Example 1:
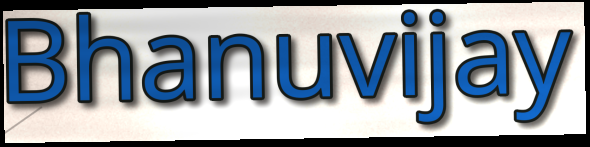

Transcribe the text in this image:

Bhanuvijay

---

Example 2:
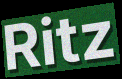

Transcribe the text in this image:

Ritz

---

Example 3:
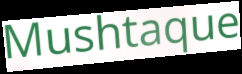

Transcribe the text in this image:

Mushtaque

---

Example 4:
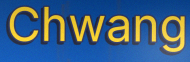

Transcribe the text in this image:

Chwang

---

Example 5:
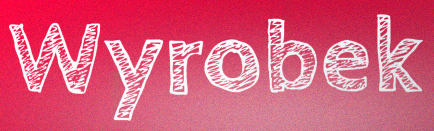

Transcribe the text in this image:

Wyrobek